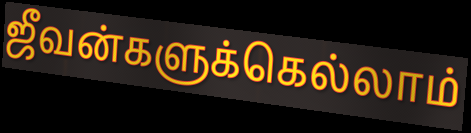
ஜீவன்களுக்கெல்லாம்